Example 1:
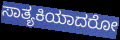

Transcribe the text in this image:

ಸಾತ್ಯಕಿಯಾದರೋ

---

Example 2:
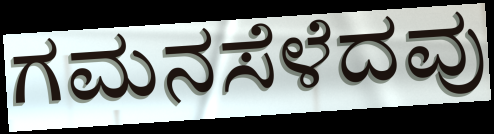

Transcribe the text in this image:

ಗಮನಸೆಳೆದವು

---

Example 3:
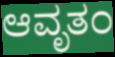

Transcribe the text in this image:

ಆವೃತಂ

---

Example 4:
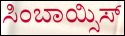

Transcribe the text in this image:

ಸಿಂಬಾಯ್ಸಿಸ್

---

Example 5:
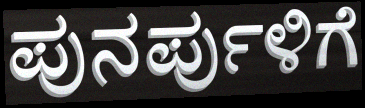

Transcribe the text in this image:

ಪುನರ್ಪುಳಿಗೆ